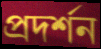
প্ৰদৰ্শন